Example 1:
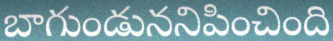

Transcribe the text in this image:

బాగుండుననిపించింది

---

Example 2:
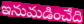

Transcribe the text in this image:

ఇనుమడించేది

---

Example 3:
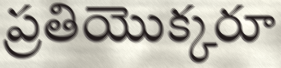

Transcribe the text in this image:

ప్రతియొక్కరూ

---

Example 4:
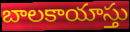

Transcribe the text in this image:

బాలకాయాస్తు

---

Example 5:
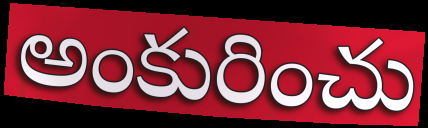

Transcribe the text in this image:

అంకురించు